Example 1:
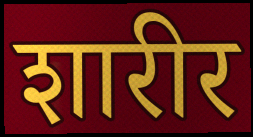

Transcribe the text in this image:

शारीर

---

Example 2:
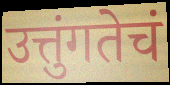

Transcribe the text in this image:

उत्तुंगतेचं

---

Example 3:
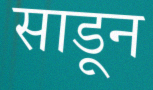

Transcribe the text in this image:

साडून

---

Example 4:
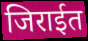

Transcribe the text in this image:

जिराईत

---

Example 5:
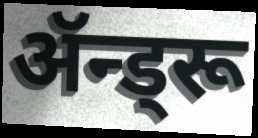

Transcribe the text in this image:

ॲन्ड्रू